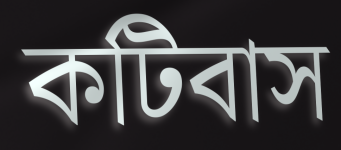
কটিবাস